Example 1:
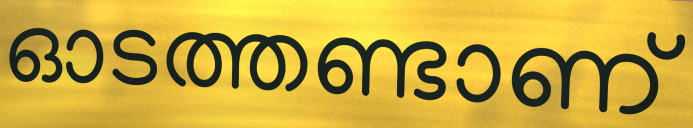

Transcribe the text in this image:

ഓടത്തണ്ടാണ്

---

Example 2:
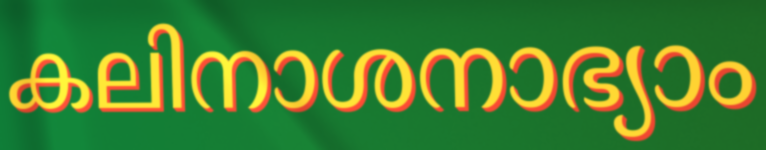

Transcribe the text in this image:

കലിനാശനാഭ്യാം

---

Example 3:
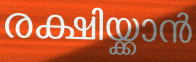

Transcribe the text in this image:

രക്ഷിയ്ക്കാൻ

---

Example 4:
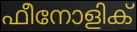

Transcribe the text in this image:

ഫീനോളിക്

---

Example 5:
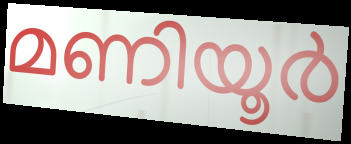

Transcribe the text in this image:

മണിയൂർ